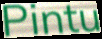
Pintu